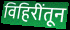
विहिरींतून